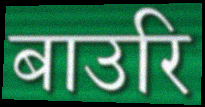
बाउरि